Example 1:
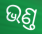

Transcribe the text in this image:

ଭଣ୍ଡ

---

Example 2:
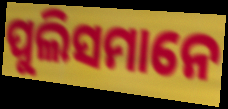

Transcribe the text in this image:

ପୁଲିସମାନେ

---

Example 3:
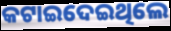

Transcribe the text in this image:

କଟାଇଦେଇଥିଲେ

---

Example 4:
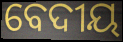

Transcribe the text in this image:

ବେଦୀୟ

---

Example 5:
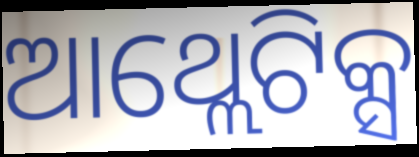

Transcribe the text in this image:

ଆଥ୍ଲେଟିକ୍ସ